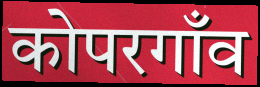
कोपरगाँव